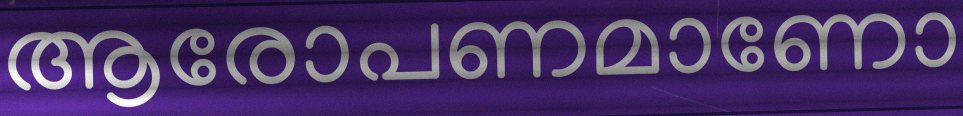
ആരോപണമാണോ